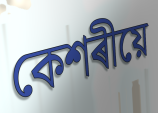
কেশৰীয়ে